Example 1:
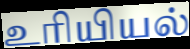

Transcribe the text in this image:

உரியியல்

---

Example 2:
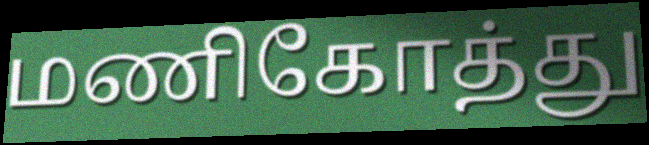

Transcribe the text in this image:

மணிகோத்து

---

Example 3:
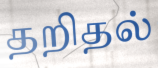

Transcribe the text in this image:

தறிதல்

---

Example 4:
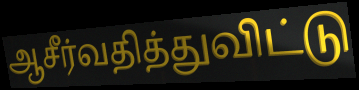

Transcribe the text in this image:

ஆசீர்வதித்துவிட்டு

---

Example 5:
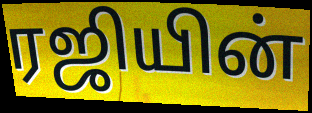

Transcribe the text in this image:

ரஜியின்